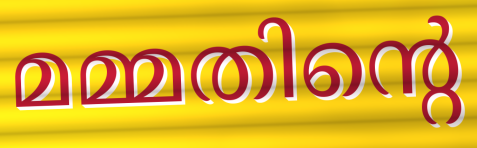
മമ്മതിന്റെ